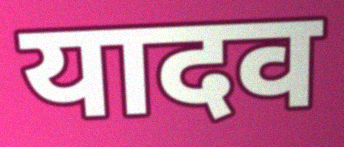
यादव